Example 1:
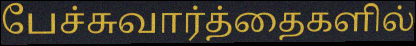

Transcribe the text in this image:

பேச்சுவார்த்தைகளில்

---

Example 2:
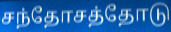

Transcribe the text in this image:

சந்தோசத்தோடு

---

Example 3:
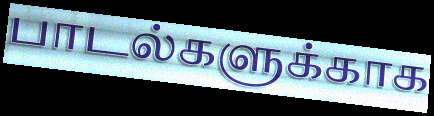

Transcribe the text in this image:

பாடல்களுக்காக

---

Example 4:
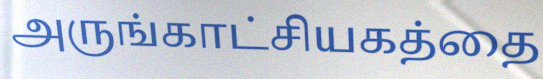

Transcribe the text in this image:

அருங்காட்சியகத்தை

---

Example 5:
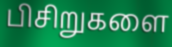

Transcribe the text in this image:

பிசிறுகளை